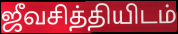
ஜீவசித்தியிடம்